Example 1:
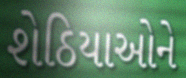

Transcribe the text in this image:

શેઠિયાઓને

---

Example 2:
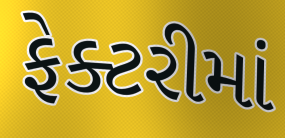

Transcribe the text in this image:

ફેક્ટરીમાં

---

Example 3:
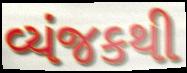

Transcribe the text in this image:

વ્યંજકથી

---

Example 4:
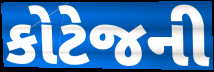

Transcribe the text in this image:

કોટેજની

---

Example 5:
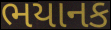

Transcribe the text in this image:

ભયાનક